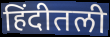
हिंदीतली